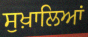
ਸੁਖ਼ਾਲਿਆਂ